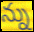
న్ను